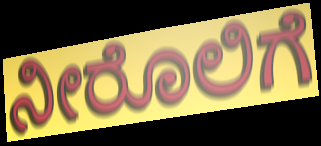
ನೀರೊಲಿಗೆ